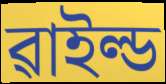
ৱাইল্ড